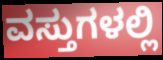
ವಸ್ತುಗಳಲ್ಲಿ